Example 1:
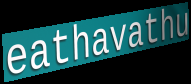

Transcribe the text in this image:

eathavathu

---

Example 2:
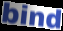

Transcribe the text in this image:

bind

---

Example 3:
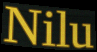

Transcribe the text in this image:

Nilu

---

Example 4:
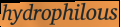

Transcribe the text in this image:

hydrophilous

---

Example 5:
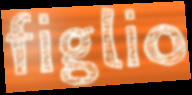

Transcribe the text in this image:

figlio